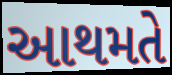
આથમતે